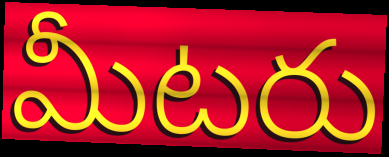
మీటరు